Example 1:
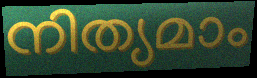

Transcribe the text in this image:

നിത്യമാം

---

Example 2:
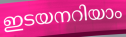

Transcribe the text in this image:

ഇടയനറിയാം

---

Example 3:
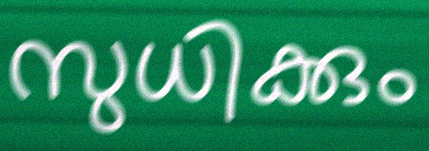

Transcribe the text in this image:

സുധിക്കും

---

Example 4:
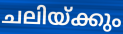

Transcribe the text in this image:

ചലിയ്ക്കും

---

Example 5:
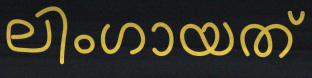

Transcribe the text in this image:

ലിംഗായത്